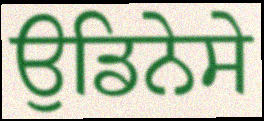
ਉਡਿਨੇਸੇ